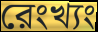
রেংখ্যং